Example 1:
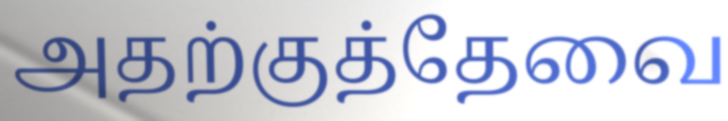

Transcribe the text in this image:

அதற்குத்தேவை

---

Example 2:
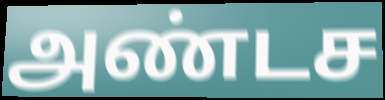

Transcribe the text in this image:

அண்டச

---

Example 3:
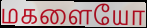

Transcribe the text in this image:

மகளையோ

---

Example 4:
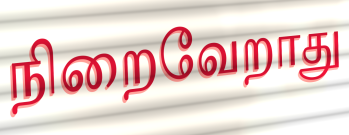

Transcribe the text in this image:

நிறைவேறாது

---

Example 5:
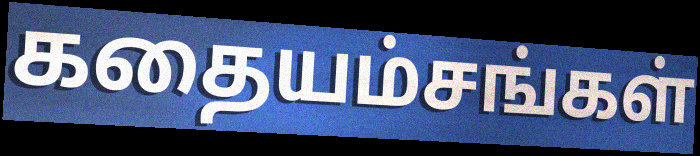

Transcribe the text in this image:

கதையம்சங்கள்